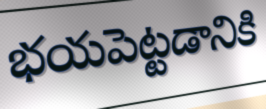
భయపెట్టడానికి